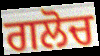
ਗਲੋਚ